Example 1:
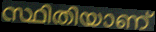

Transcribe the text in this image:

സ്ഥിതിയാണ്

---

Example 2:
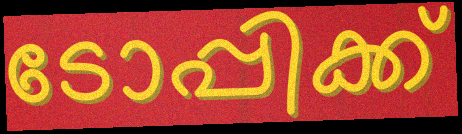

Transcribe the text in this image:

ടോപ്പിക്ക്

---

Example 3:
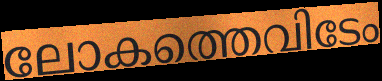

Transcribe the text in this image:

ലോകത്തെവിടേം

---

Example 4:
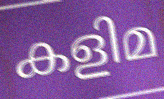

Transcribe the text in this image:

കളിമ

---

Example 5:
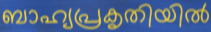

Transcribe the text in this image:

ബാഹ്യപ്രകൃതിയിൽ